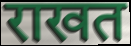
राखत